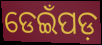
ଡେଇଁପଡ଼